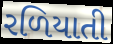
રળિયાતી